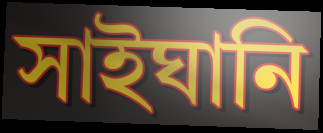
সাইঘানি